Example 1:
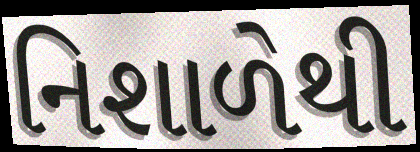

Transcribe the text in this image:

નિશાળેથી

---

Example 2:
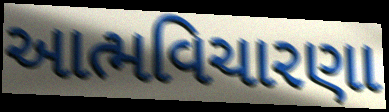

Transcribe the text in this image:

આત્મવિચારણા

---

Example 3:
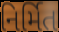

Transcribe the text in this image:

નિર્મિત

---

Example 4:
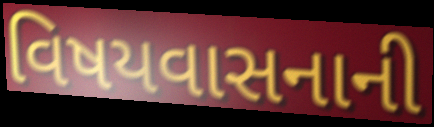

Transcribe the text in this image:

વિષયવાસનાની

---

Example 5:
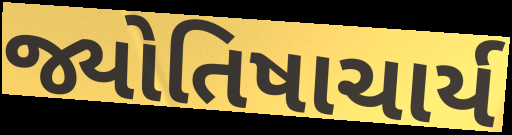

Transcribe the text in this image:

જ્યોતિષાચાર્ય